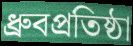
ধ্রুবপ্রতিষ্ঠা